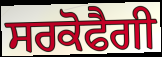
ਸਰਕੋਫੈਗੀ